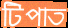
টিপাত